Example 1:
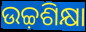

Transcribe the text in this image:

ଉଚ୍ଚ଼ଶିକ୍ଷା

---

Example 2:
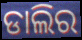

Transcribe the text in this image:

ଡାଲିର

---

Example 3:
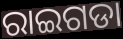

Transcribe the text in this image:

ରାଇଗଡା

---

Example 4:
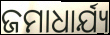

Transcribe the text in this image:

ଜମାଧାର୍ଯ୍ୟ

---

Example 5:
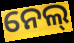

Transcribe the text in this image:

ନେଲ୍